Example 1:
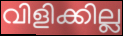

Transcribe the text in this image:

വിളിക്കില്ല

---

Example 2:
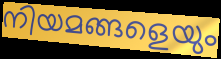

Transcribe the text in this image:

നിയമങ്ങളെയും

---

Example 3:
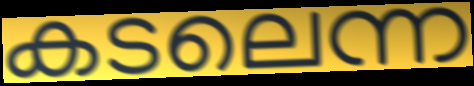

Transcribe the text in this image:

കടലെന്ന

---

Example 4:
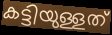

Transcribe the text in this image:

കട്ടിയുള്ളത്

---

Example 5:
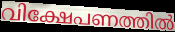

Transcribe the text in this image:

വിക്ഷേപണത്തിൽ